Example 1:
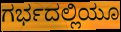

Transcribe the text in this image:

ಗರ್ಭದಲ್ಲಿಯೂ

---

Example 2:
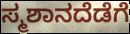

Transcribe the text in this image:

ಸ್ಮಶಾನದೆಡೆಗೆ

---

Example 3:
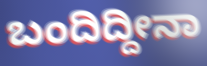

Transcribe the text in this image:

ಬಂದಿದ್ದೀನಾ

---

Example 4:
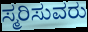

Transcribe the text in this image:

ಸ್ಮರಿಸುವರು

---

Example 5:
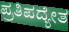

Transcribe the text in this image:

ಪ್ರತಿಪದ್ಯೇತ